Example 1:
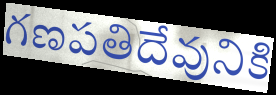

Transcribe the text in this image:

గణపతిదేవునికి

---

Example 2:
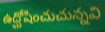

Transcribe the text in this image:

ఉద్ఘోషించుచున్నవి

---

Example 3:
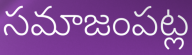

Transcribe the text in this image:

సమాజంపట్ల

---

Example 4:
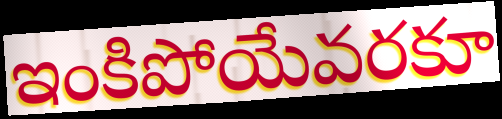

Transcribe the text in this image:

ఇంకిపోయేవరకూ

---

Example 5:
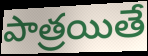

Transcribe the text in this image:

పాత్రయితే